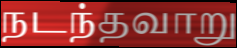
நடந்தவாறு